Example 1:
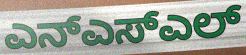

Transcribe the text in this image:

ಎನ್ಎಸ್ಎಲ್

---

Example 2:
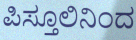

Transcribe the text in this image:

ಪಿಸ್ತೂಲಿನಿಂದ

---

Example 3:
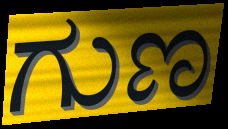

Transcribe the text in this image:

ಗುಣ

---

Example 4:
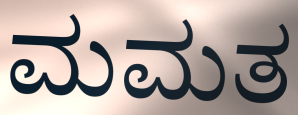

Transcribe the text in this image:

ಮಮತ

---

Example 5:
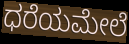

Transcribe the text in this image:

ಧರೆಯಮೇಲೆ